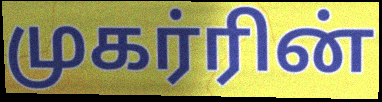
முகர்ரின்